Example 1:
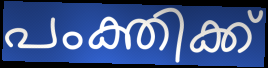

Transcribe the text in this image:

പംക്തിക്ക്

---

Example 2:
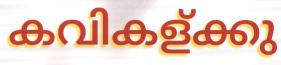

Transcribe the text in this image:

കവികള്ക്കു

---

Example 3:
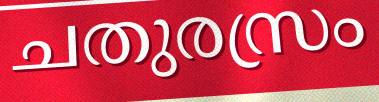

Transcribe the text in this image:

ചതുരസ്രം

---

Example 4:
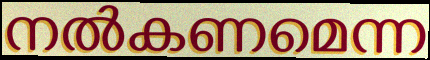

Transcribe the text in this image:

നൽകണമെന്ന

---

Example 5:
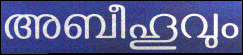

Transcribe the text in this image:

അബീഹൂവും